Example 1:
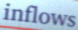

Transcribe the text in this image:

inflows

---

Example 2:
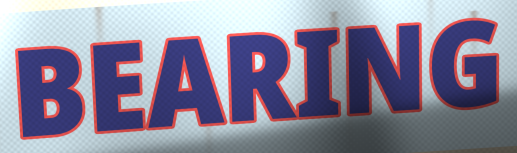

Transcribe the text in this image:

BEARING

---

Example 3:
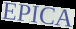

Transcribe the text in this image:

EPICA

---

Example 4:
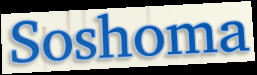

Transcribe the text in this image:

Soshoma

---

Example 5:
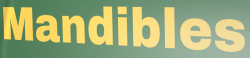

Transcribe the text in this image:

Mandibles